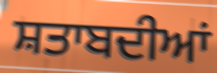
ਸ਼ਤਾਬਦੀਆਂ